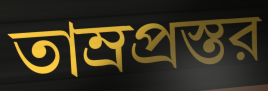
তাম্রপ্রস্তর